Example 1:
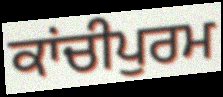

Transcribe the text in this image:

ਕਾਂਚੀਪੁਰਮ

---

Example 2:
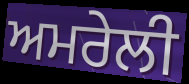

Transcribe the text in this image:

ਅਮਰੇਲੀ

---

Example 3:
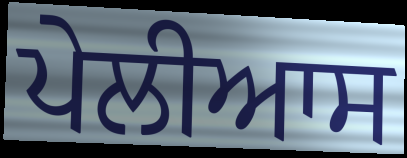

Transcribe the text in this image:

ਪੇਲੀਆਸ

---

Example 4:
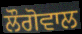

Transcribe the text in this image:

ਲੌਗੋਵਾਲ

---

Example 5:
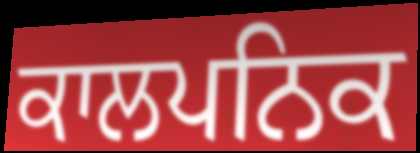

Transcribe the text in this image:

ਕਾਲਪਨਿਕ